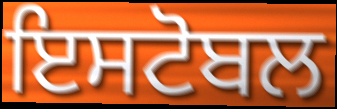
ਇਸਟੋਬਲ